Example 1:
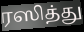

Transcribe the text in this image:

ரஸித்து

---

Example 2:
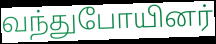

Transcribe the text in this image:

வந்துபோயினர்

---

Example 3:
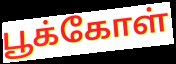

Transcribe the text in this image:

பூக்கோள்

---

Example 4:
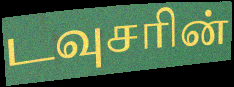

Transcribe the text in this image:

டவுசரின்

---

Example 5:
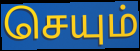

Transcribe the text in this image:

செயும்